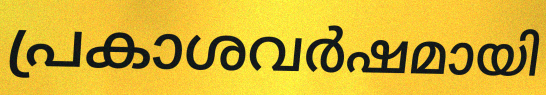
പ്രകാശവർഷമായി